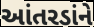
આંતરડાંને